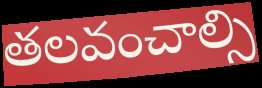
తలవంచాల్సి